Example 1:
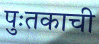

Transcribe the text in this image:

पुःतकाची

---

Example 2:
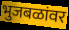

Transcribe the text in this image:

भुजबळांवर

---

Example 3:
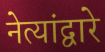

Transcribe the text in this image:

नेत्यांद्वारे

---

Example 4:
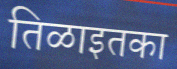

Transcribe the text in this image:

तिळाइतका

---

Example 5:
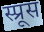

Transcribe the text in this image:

स्प्रूस